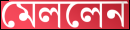
মেললেন